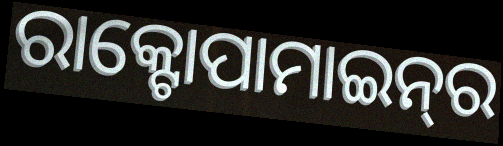
ରାକ୍ଟୋପାମାଇନ୍‌ର